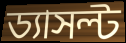
ড্যাসল্ট